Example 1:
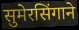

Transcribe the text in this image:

सुमेरसिंगाने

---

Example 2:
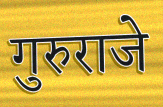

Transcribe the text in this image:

गुरुराजे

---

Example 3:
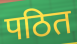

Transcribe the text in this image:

पठित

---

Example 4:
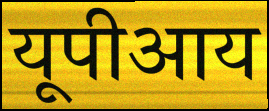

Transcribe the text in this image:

यूपीआय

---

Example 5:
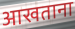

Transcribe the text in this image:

आखताना